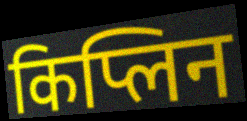
किप्लिन